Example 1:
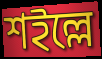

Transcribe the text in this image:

শইল্লে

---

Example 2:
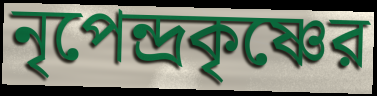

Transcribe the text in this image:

নৃপেন্দ্রকৃষ্ণের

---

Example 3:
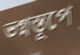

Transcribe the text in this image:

ভগ্নস্তূপে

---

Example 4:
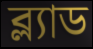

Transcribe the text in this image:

ব্ল্যাড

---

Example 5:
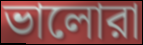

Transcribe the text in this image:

ভালোরা